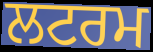
ਲਟਰਮ